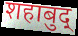
शहाबुद्